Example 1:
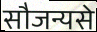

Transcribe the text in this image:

सौजन्यसे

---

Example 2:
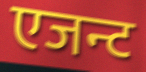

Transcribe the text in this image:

एजन्ट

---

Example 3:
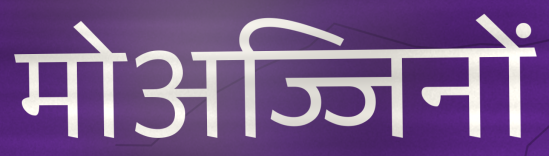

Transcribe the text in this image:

मोअज्जिनों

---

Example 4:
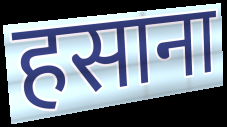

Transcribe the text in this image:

हसाना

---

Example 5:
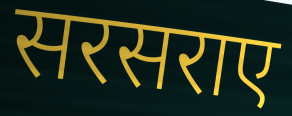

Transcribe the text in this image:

सरसराए